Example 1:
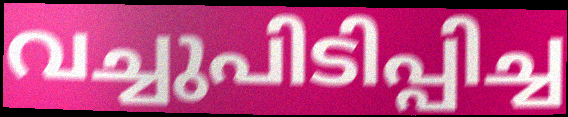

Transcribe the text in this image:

വച്ചുപിടിപ്പിച്ച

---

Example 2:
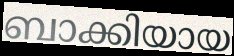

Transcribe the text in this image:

ബാക്കിയായ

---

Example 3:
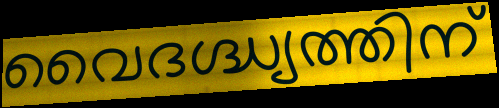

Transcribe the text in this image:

വൈദഗ്ദ്ധ്യത്തിന്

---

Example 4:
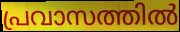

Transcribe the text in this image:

പ്രവാസത്തിൽ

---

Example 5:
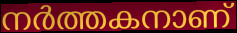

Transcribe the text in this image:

നർത്തകനാണ്